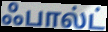
ஃபால்ட்